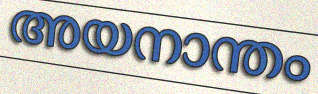
അയനാന്തം